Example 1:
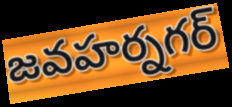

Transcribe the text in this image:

జవహర్నగర్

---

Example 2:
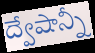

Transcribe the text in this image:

ద్వేషాన్నీ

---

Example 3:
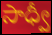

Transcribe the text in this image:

సాధ్వీ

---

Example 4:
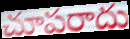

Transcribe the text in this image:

చూపరాదు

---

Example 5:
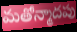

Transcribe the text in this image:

మతోన్మాదపు